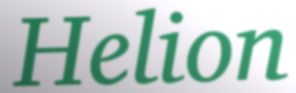
Helion